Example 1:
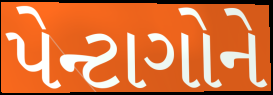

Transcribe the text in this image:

પેન્ટાગોને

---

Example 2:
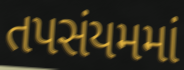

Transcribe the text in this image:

તપસંયમમાં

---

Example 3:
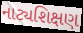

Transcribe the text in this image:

નાટ્યશિક્ષણ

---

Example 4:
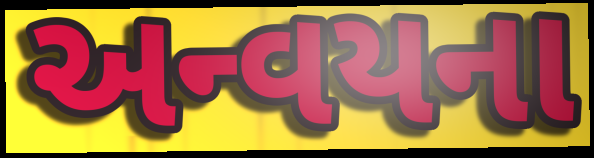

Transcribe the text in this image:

અન્વયના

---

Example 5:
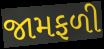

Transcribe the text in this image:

જામફળી